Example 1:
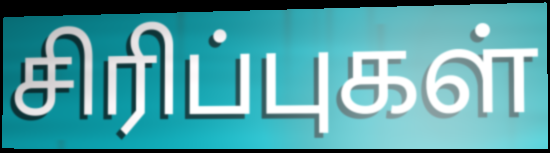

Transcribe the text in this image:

சிரிப்புகள்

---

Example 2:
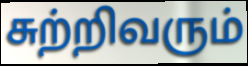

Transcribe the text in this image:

சுற்றிவரும்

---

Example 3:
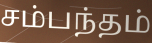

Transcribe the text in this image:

சம்பந்தம்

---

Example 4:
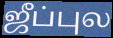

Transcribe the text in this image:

ஜீப்புல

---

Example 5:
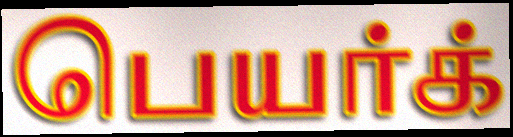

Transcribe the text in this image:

பெயர்க்